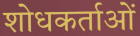
शोधकर्ताओं